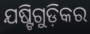
ଯଷ୍ଟିଗୁଡ଼ିକର